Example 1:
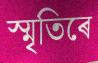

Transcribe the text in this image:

স্মৃতিৰে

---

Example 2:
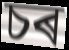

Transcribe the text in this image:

চৰ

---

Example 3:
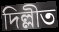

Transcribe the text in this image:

দিল্লীত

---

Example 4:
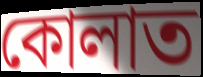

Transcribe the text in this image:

কোলাত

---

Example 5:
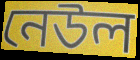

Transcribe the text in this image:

নেউল